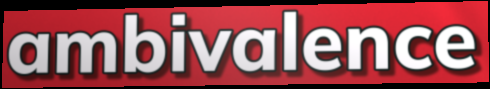
ambivalence